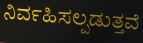
ನಿರ್ವಹಿಸಲ್ಪಡುತ್ತವೆ